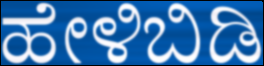
ಹೇಳಿಬಿಡಿ